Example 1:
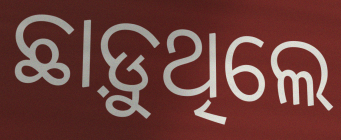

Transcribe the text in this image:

ଛାଡ଼ୁଥିଲେ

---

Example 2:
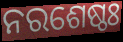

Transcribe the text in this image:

ନରଶେଷ୍ଠଃ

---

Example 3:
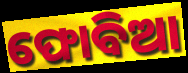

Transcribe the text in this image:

ଫୋବିଆ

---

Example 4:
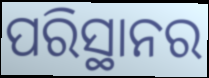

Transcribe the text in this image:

ପରିସ୍ଥାନର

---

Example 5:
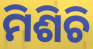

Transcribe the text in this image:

ମିଶିଚି